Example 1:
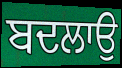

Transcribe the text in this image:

ਬਦਲਾਉ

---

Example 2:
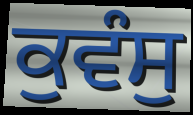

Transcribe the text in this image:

ਕੁਵੰਸੁ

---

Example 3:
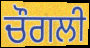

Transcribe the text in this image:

ਚੌਗਲੀ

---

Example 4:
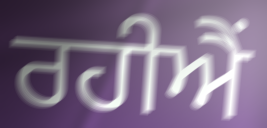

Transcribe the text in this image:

ਰਹੀਐਂ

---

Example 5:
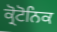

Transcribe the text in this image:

ਕ੍ਰੋਟੋਨਿਕ